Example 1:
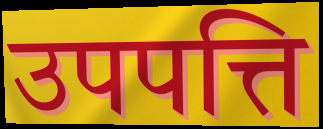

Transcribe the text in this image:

उपपत्ति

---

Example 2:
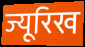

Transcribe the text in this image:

ज्यूरिख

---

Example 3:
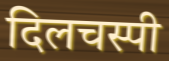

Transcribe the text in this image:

दिलचस्पी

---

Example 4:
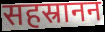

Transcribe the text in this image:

सहस्रानन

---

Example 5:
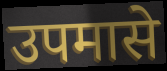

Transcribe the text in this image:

उपमासे